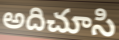
అదిచూసి